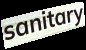
sanitary